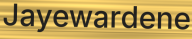
Jayewardene